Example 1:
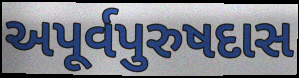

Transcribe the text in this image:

અપૂર્વપુરુષદાસ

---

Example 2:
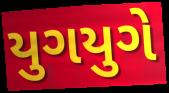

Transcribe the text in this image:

યુગયુગે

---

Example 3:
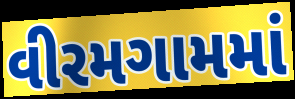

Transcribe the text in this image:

વીરમગામમાં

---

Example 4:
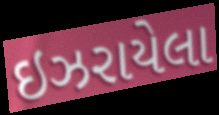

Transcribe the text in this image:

ઇઝરાયેલા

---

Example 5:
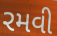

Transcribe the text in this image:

રમવી